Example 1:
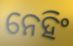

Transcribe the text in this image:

ନେହିଂ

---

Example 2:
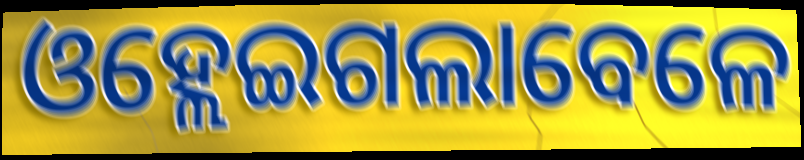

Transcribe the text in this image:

ଓହ୍ଲେଇଗଲାବେଳେ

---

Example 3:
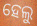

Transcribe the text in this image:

ହେଲୁ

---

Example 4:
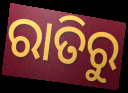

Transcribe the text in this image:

ରାତିରୁ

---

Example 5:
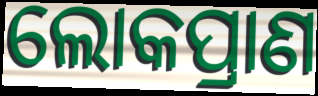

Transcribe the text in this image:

ଲୋକପ୍ରାଣ